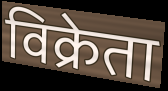
विक्रेता